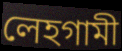
লেহগামী